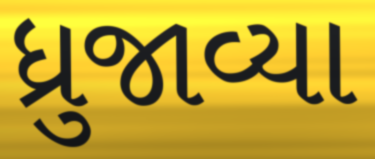
ધ્રુજાવ્યા